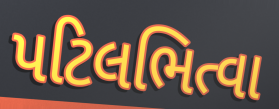
પટિલભિત્વા